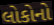
લોકોનો